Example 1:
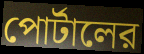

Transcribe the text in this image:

পোর্টালের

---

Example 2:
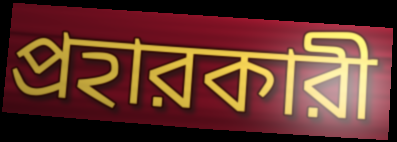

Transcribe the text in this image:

প্রহারকারী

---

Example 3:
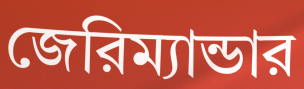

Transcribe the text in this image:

জেরিম্যান্ডার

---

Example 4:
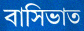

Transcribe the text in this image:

বাসিভাত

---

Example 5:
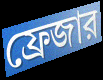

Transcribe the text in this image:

ফ্রেজার